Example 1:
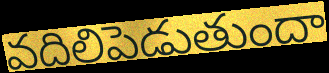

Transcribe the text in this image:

వదిలిపెడుతుందా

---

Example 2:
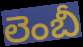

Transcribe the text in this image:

లెంబీ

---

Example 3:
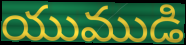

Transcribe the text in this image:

యుముడి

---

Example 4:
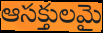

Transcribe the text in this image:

ఆసక్తులమై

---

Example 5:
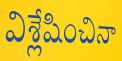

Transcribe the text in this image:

విశ్లేషించినా